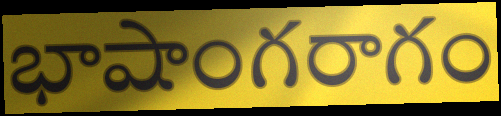
భాషాంగరాగం